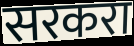
सरकरा